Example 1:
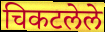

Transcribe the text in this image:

चिकटलेले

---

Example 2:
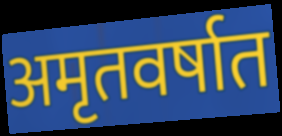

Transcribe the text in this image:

अमृतवर्षात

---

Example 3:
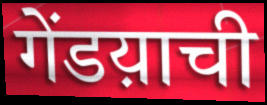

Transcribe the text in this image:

गेंडय़ाची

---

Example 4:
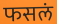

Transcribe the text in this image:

फसलं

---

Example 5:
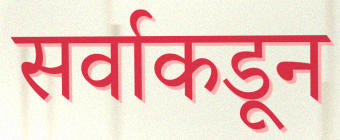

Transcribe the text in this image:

सर्वाकडून